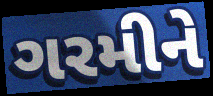
ગરમીને